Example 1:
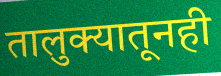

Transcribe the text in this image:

तालुक्यातूनही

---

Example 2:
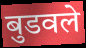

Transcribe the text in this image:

बुडवले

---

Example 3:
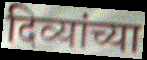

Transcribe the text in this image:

दिव्यांच्या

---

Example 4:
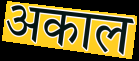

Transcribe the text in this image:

अकाल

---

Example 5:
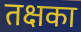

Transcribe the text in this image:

तक्षका